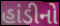
હાંડીનો